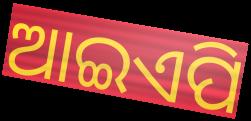
ଆଇଏପି